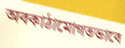
অবকাঠামোগতভাবে